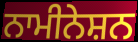
ਨਾਮੀਨੇਸ਼ਨ